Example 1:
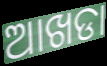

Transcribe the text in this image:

ଆଖଡା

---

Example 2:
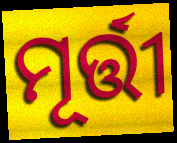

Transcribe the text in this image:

ମୂର୍ତ୍ତୀ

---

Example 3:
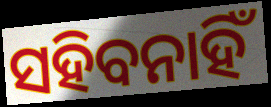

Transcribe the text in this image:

ସହିବନାହିଁ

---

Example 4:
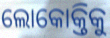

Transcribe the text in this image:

ଲୋକୋକ୍ତିକୁ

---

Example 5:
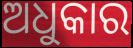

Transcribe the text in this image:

ଅଧୁକାର